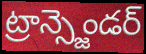
ట్రాన్స్జెండర్